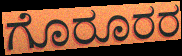
ಗೊರೂರರ